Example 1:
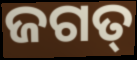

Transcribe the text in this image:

ଜଗତ୍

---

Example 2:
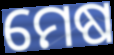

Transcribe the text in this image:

ମେଷ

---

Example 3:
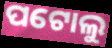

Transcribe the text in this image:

ପଟୋଲୁ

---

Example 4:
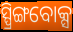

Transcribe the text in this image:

ସ୍ପ୍ରିଙ୍ଗବୋକ୍ସ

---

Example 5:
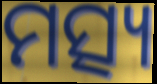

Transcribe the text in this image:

ମତ୍ସ୍ୟ